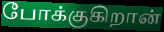
போக்குகிறான்